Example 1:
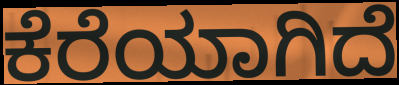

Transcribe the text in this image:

ಕೆರೆಯಾಗಿದೆ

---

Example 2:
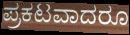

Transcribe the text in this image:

ಪ್ರಕಟವಾದರೂ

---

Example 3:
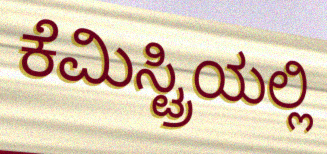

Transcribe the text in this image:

ಕೆಮಿಸ್ಟ್ರಿಯಲ್ಲಿ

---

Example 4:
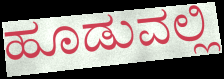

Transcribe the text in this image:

ಹೂಡುವಲ್ಲಿ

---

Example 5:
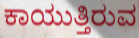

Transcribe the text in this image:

ಕಾಯುತ್ತಿರುವ